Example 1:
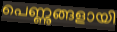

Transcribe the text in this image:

പെണ്ണുങ്ങളായി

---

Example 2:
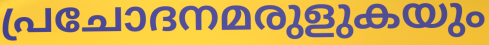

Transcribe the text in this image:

പ്രചോദനമരുളുകയും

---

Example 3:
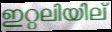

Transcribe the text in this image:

ഇറ്റലിയില്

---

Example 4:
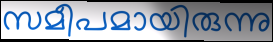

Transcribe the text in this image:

സമീപമായിരുന്നു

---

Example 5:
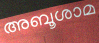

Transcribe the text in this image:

അബൂശാമ